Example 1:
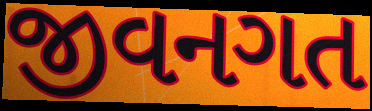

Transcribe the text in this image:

જીવનગત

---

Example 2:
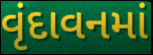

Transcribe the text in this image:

વૃંદાવનમાં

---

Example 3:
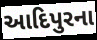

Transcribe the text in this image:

આદિપુરના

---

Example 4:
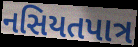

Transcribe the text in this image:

નસિયતપાત્ર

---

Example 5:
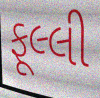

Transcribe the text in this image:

ફૂલ્લી